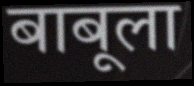
बाबूला